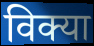
विक्या